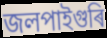
জলপাইগুৰি